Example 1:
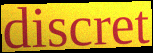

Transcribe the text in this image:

discret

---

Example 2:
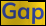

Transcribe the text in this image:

Gap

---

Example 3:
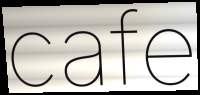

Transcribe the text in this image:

cafe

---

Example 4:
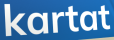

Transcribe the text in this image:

kartat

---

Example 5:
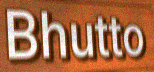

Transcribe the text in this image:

Bhutto